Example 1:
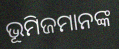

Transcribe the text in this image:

ଭୂମିଜମାନଙ୍କ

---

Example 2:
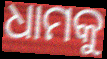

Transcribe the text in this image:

ଧାମକୁ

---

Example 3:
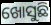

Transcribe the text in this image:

ଖୋସୁଛି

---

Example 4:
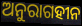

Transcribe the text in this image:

ଅନୁରାଗହୀନ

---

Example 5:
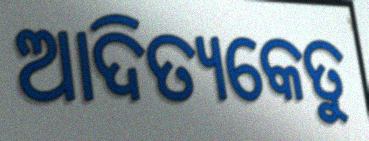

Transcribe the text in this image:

ଆଦିତ୍ୟକେତୁ